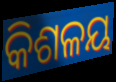
କିଶଳୟ